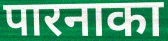
पारनाका